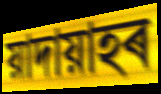
য়াদায়াহৰ